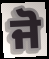
ਜੋ